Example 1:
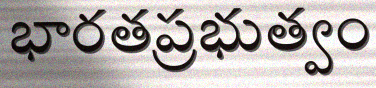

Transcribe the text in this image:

భారతప్రభుత్వం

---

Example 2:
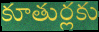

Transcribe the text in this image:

కూతుర్లకు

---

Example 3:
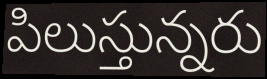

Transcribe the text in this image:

పిలుస్తున్నరు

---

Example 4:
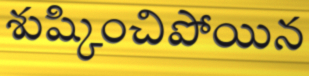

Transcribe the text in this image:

శుష్కించిపోయిన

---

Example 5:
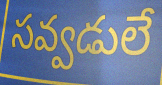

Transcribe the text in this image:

సవ్వడులే